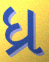
ધ્ર